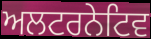
ਅਲਟਰਨੇਟਿਵ